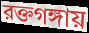
রক্তগঙ্গায়